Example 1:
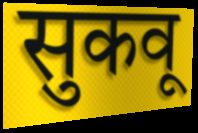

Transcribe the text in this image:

सुकवू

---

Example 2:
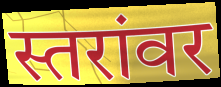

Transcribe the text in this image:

स्तरांवर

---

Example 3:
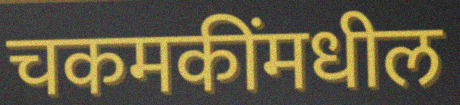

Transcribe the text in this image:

चकमकींमधील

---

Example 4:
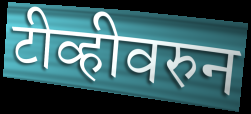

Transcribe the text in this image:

टीव्हीवरुन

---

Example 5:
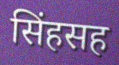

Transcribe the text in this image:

सिंहसह